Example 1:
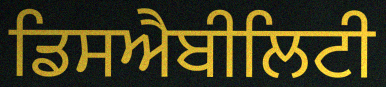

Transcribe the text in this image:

ਡਿਸਐਬੀਲਿਟੀ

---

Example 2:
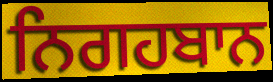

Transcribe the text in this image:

ਨਿਗਹਬਾਨ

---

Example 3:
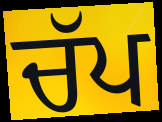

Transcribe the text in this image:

ਚੱਪ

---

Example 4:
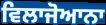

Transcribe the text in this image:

ਵਿਲਾਜੋਆਨਾ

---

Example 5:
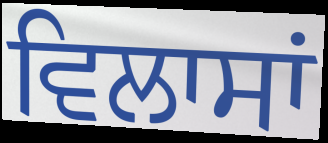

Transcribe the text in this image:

ਵਿਲਾਸਾਂ